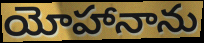
యోహానాను